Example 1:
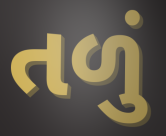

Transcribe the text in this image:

તળું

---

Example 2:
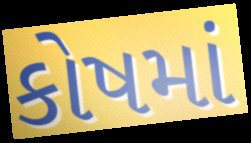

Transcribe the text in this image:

કોષમાં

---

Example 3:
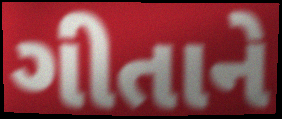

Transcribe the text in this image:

ગીતાને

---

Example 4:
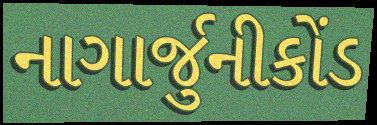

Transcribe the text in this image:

નાગાર્જુનીકોંડ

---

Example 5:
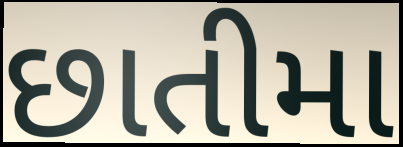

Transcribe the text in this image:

છાતીમા